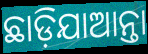
ଛାଡ଼ିଯାଆନ୍ତା